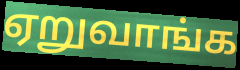
ஏறுவாங்க